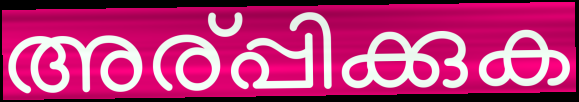
അര്പ്പിക്കുക